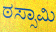
ಠಸ್ಸಾಮಿ